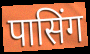
पासिंग